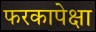
फरकापेक्षा